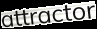
attractor